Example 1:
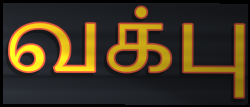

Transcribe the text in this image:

வக்பு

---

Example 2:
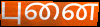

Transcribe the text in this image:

புனை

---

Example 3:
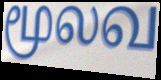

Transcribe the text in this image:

மூலவ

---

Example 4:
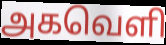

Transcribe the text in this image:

அகவெளி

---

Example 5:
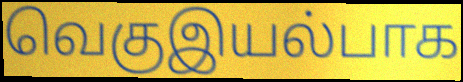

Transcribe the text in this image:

வெகுஇயல்பாக